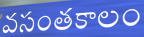
వసంతకాలం